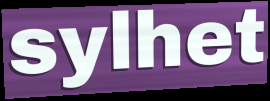
sylhet